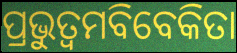
ପ୍ରଭୁତ୍ୱମବିବେକିତା